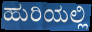
ಹುರಿಯಲ್ಲಿ